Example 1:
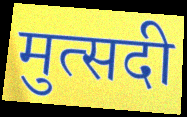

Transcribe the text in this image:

मुत्सदी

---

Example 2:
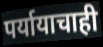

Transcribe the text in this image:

पर्यायाचाही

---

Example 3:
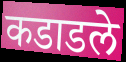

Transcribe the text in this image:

कडाडले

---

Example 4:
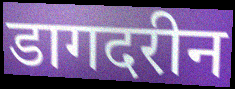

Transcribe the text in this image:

डागदरीन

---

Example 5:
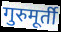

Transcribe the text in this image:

गुरुमूर्ती